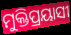
ମୁକ୍ତିପ୍ରୟାସୀ